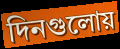
দিনগুলোয়